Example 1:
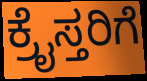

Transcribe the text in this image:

ಕ್ರೈಸ್ತರಿಗೆ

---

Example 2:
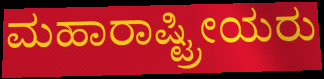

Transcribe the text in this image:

ಮಹಾರಾಷ್ಟ್ರೀಯರು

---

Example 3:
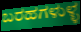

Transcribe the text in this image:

ಬರಹಗಳುಳ್ಳ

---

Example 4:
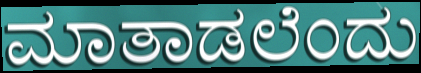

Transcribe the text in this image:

ಮಾತಾಡಲೆಂದು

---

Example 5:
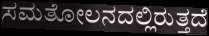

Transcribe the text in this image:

ಸಮತೋಲನದಲ್ಲಿರುತ್ತದೆ